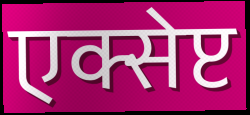
एक्सेप्ट